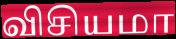
விசியமா